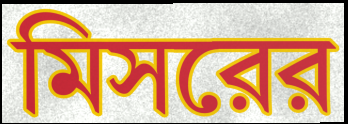
মিসরের